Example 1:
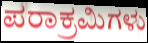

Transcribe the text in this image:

ಪರಾಕ್ರಮಿಗಳು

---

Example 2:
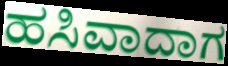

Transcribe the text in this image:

ಹಸಿವಾದಾಗ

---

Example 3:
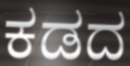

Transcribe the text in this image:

ಕಡದ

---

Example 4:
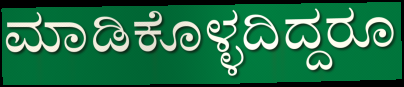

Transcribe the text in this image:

ಮಾಡಿಕೊಳ್ಳದಿದ್ದರೂ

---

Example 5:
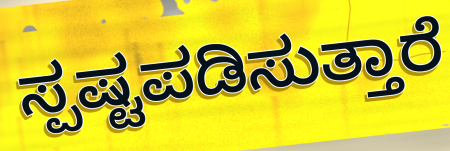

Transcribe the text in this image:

ಸ್ಪಷ್ಟಪಡಿಸುತ್ತಾರೆ